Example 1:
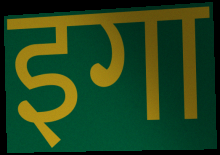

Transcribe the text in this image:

इगा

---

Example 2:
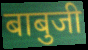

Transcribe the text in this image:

बाबुजी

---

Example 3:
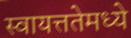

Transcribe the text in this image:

स्वायत्ततेमध्ये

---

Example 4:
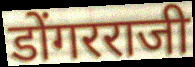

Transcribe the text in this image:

डोंगरराजी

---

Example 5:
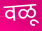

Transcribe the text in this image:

वळू